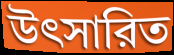
উৎসারিত